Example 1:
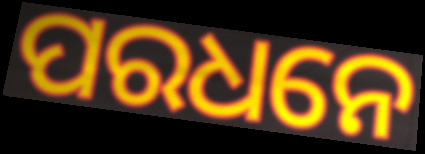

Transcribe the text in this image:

ପରଧନେ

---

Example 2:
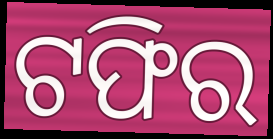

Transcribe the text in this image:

ଟଫିର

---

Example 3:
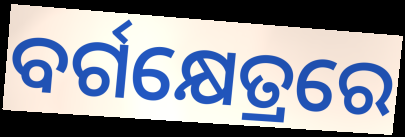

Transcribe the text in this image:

ବର୍ଗକ୍ଷେତ୍ରରେ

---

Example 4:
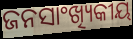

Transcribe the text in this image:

ଜନସାଂଖ୍ୟିକୀୟ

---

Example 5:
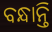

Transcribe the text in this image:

ବନ୍ଧାନ୍ତି